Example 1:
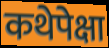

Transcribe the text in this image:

कथेपेक्षा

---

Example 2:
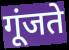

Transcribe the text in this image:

गूंजते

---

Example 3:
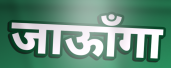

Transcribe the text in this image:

जाऊाँगा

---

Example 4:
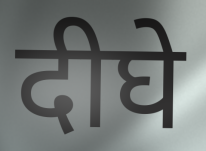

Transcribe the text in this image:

दीघे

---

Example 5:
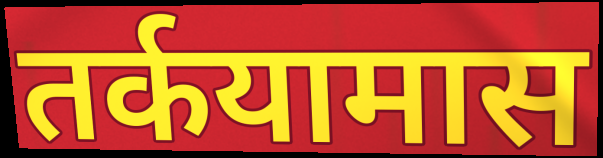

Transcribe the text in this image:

तर्कयामास